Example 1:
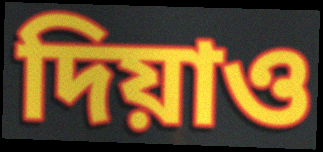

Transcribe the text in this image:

দিয়াও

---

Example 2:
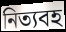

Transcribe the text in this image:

নিত্যবহ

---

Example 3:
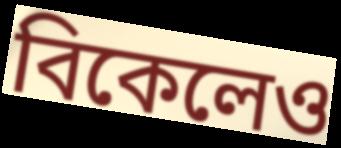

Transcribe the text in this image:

বিকেলেও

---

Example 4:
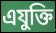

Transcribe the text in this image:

এযুক্তি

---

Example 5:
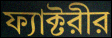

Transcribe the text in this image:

ফ্যাক্টরীর